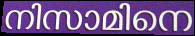
നിസാമിനെ